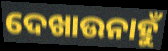
ଦେଖାଉନାହୁଁ